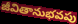
జీవితానుభవపు